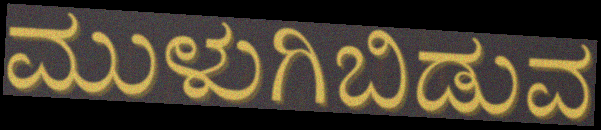
ಮುಳುಗಿಬಿಡುವ